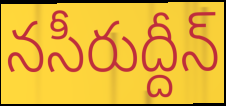
నసీరుద్దీన్